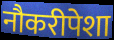
नौकरीपेशा